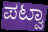
ಪಟ್ವಾ